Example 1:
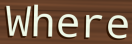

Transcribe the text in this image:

Where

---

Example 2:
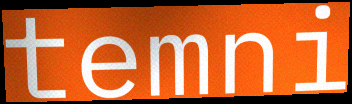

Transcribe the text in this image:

temni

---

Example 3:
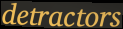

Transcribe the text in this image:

detractors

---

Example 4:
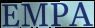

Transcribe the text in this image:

EMPA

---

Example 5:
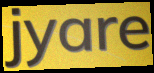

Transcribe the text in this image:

jyare